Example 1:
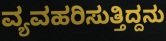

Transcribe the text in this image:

ವ್ಯವಹರಿಸುತ್ತಿದ್ದನು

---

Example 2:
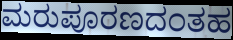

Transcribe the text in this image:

ಮರುಪೂರಣದಂತಹ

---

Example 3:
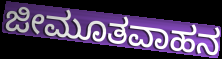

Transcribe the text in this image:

ಜೀಮೂತವಾಹನ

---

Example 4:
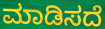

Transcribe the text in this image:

ಮಾಡಿಸದೆ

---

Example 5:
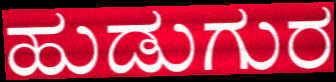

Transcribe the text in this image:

ಹುಡುಗುರ